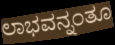
ಲಾಭವನ್ನಂತೂ